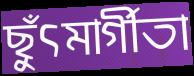
ছুঁৎমার্গীতা